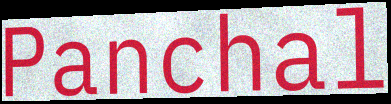
Panchal